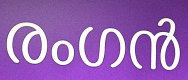
രംഗൻ